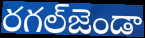
రగల్‌జెండా